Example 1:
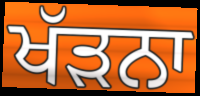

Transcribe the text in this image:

ਖੱੜਨਾ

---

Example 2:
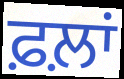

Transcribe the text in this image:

ਫ਼ਲ਼ਾਂ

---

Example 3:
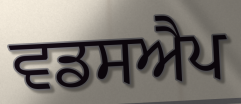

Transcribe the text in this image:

ਵਡਸਐਪ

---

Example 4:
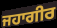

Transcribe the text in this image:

ਜਹਾਗੀਰ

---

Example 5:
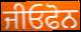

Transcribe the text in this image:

ਜੀਓਫੋਨ